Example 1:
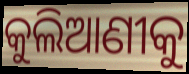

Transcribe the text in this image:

କୁଲିଆଣୀକୁ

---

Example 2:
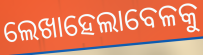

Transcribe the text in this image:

ଲେଖାହେଲାବେଳକୁ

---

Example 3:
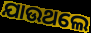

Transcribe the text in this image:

ଯାଉଥଲେ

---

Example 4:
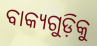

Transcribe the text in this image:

ବାକ୍ୟଗୁଡ଼ିକୁ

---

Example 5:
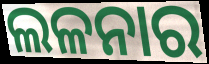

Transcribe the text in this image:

ଲଳନାର